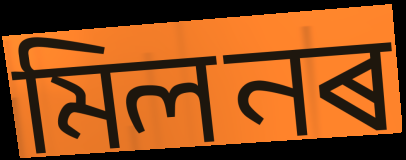
মিলনৰ